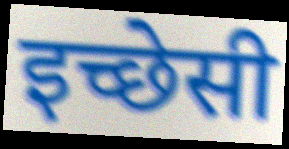
इच्छेसी